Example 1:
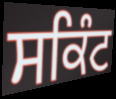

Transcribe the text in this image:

ਸਕਿੰਟ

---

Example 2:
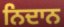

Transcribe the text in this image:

ਨਿਦਾਨ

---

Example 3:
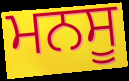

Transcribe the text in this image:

ਮਨਸੂ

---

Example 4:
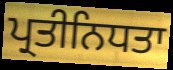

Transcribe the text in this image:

ਪ੍ਰਤੀਨਿਧਤਾ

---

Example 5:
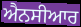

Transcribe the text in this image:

ਐਨਸੀਆਰ